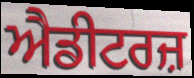
ਐਡੀਟਰਜ਼